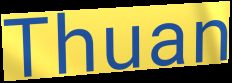
Thuan